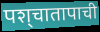
पश्चातापाची